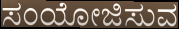
ಸಂಯೋಜಿಸುವ